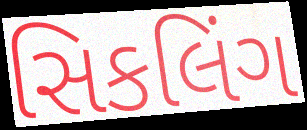
સિકલિંગ